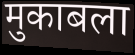
मुकाबला